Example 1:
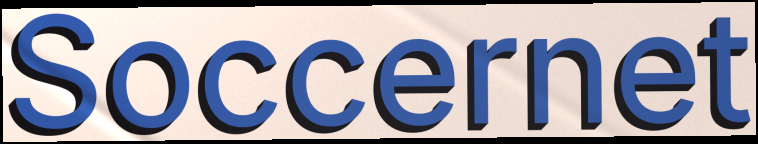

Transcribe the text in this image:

Soccernet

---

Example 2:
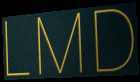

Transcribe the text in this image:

LMD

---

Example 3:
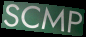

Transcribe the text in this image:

SCMP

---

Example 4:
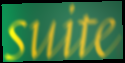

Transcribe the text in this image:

suite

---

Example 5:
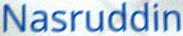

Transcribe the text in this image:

Nasruddin